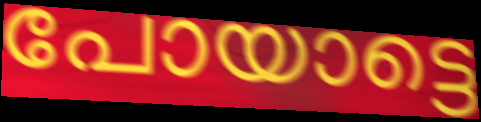
പോയാട്ടെ